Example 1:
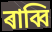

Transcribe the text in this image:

ৰাব্বি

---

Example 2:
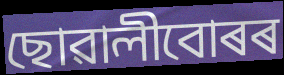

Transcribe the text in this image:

ছোৱালীবোৰৰ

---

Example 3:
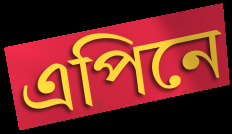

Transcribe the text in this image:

এপিনে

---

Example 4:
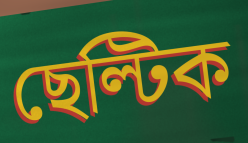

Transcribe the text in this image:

ছেল্টিক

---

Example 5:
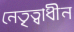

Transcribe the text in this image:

নেতৃত্বাধীন